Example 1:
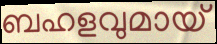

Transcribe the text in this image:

ബഹളവുമായ്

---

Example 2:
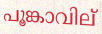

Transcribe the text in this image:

പൂങ്കാവില്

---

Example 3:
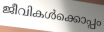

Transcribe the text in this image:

ജീവികൾക്കൊപ്പം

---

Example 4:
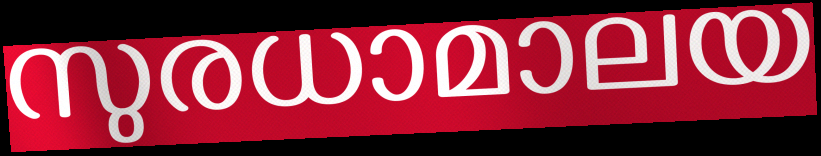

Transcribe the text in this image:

സുരധാമാലയ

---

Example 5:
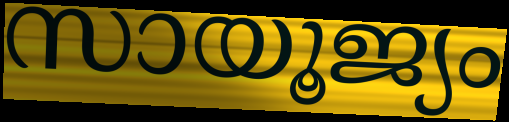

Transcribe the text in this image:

സായൂജ്യം